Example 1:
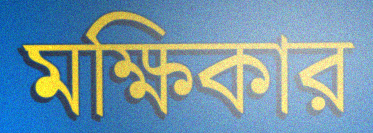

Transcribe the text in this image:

মক্ষিকার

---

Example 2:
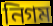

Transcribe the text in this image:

নিগম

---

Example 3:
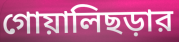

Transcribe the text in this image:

গোয়ালিছড়ার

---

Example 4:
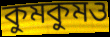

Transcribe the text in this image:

কুমকুমও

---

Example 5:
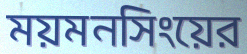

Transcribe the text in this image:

ময়মনসিংয়ের